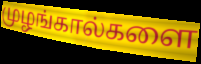
முழங்கால்களை